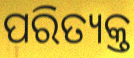
ପରିତ୍ଯକ୍ତ